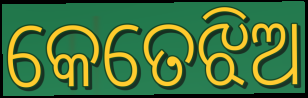
କେତେଝିଅ